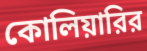
কোলিয়ারির